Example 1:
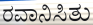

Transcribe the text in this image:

ರವಾನಿಸಿತು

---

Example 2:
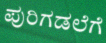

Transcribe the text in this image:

ಪುರಿಗಡಲೆಗೆ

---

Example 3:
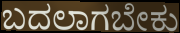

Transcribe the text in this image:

ಬದಲಾಗಬೇಕು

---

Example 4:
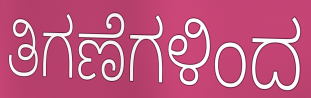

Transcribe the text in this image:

ತಿಗಣೆಗಳಿಂದ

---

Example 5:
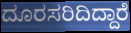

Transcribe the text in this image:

ದೂರಸರಿದಿದ್ದಾರೆ